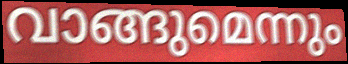
വാങ്ങുമെന്നും